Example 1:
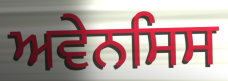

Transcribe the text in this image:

ਅਵੇਨਸਿਸ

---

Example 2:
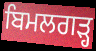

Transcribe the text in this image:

ਬਿਮਲਗੜ੍ਹ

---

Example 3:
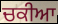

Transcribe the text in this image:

ਚਕੀਆ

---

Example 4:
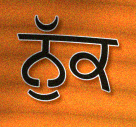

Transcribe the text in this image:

ਨੁੱਕ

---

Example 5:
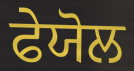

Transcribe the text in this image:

ਫੇਯੋਲ